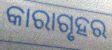
କାରାଗୃହର